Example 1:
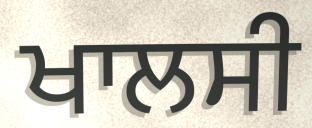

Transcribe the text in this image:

ਖਾਲਸੀ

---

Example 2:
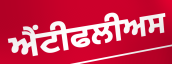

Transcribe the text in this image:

ਐਂਟੀਫਲੀਅਸ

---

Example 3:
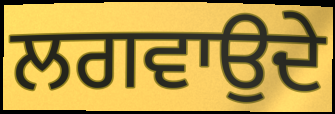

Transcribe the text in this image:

ਲਗਵਾਉਦੇ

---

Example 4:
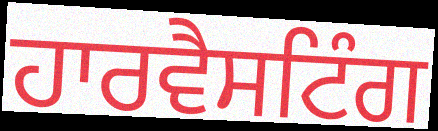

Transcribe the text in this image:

ਹਾਰਵੈਸਟਿੰਗ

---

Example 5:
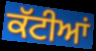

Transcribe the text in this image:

ਕੱਟੀਆਂ